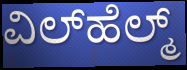
ವಿಲ್‌ಹೆಲ್ಮ್